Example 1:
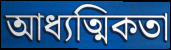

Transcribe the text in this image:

আধ্যত্মিকতা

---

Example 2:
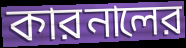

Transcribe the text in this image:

কারনালের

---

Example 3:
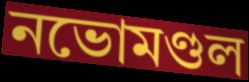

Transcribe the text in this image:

নভোমণ্ডল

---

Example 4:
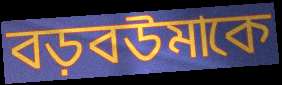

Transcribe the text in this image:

বড়বউমাকে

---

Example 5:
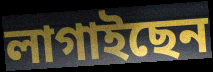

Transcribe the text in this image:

লাগাইছেন